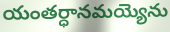
యంతర్ధానమయ్యెను